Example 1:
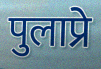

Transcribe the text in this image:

पुलाप्रे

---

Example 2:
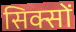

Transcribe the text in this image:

सिक्सों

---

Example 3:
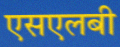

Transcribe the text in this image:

एसएलबी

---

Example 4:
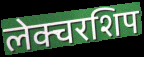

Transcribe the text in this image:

लेक्चरशिप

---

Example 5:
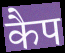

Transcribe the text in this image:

कैप